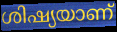
ശിഷ്യയാണ്